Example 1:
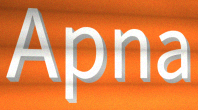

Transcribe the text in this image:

Apna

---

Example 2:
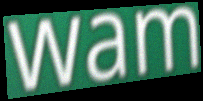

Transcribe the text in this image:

wam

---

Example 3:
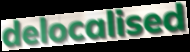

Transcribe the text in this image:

delocalised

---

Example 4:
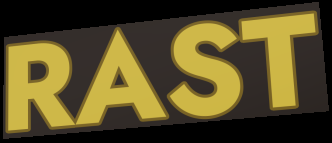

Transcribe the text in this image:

RAST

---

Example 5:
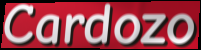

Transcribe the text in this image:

Cardozo